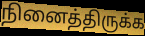
நினைத்திருக்க